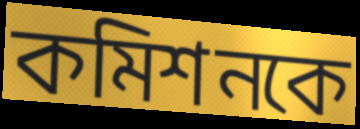
কমিশনকে